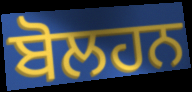
ਬੋਲਹਨ